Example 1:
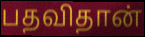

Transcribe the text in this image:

பதவிதான்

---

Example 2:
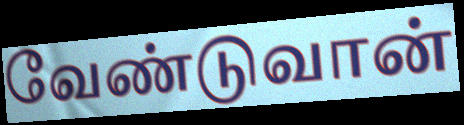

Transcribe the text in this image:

வேண்டுவான்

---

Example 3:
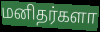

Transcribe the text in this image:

மனிதர்களா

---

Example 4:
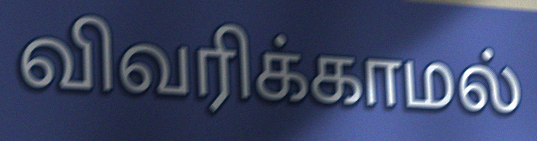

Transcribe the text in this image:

விவரிக்காமல்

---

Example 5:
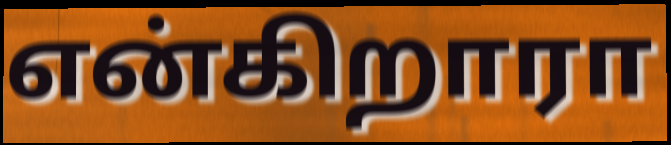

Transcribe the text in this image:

என்கிறாரா